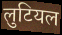
लुटियल